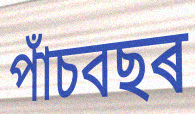
পাঁচবছৰ